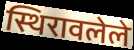
स्थिरावलेले